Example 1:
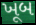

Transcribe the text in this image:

ખૂબ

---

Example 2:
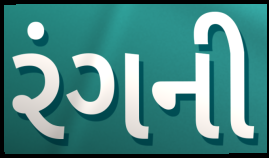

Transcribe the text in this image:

રંગની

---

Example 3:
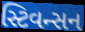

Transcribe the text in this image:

સ્ટિવન્સન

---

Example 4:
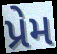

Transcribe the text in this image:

પ્રેમ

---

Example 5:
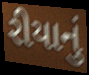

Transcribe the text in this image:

રીયાનું